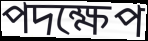
পদক্ষেপ